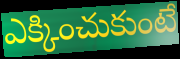
ఎక్కించుకుంటే